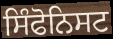
ਸਿੰਫੋਨਿਸਟ